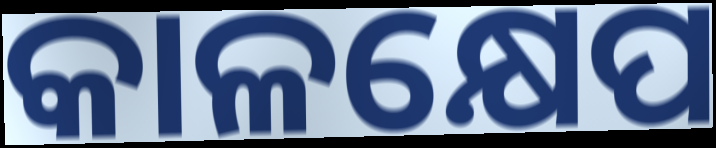
କାଳକ୍ଷେପ